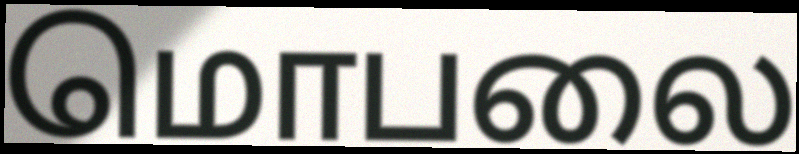
மொபலை